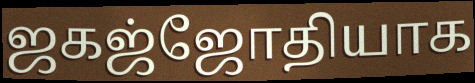
ஜகஜ்ஜோதியாக